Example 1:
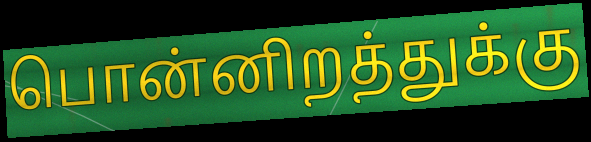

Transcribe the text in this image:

பொன்னிறத்துக்கு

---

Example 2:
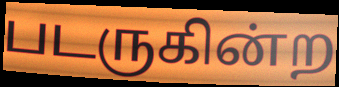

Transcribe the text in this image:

படருகின்ற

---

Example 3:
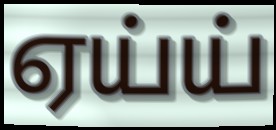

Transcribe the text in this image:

ஏய்ய்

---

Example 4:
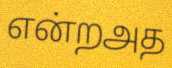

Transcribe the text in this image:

என்றஅத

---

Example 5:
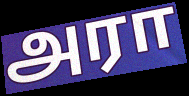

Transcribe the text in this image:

அரா